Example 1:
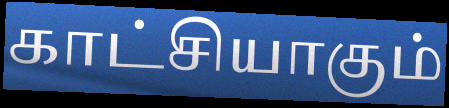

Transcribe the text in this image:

காட்சியாகும்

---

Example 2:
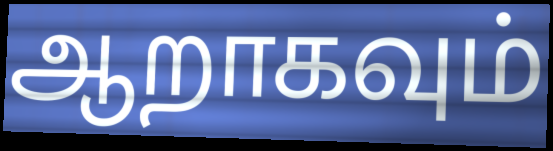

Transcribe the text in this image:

ஆறாகவும்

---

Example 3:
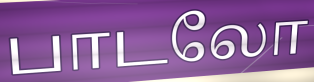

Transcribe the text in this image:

பாடலோ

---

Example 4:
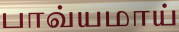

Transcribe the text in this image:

பாவ்யமாய்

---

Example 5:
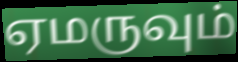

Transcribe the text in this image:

ஏமருவும்